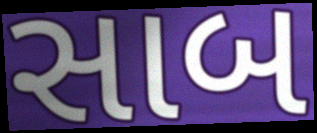
સાબ